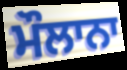
ਮੌਲਾਨਾ